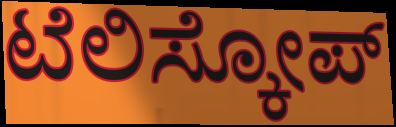
ಟೆಲಿಸ್ಕೋಪ್